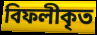
বিফলীকৃত